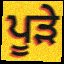
ਪੂੜੇ